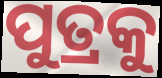
ପୁତ୍ରକୁ